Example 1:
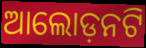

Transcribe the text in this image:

ଆଲୋଡ଼ନଟି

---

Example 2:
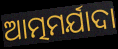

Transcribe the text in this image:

ଆତ୍ମମର୍ଯାଦା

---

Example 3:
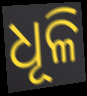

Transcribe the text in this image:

ଧୂଳି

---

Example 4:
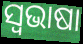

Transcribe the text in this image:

ସ୍ୱଭାଷା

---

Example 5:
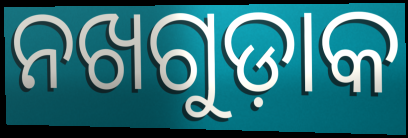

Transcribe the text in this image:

ନଖଗୁଡ଼ାକ